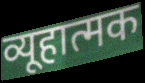
व्यूहात्मक